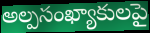
అల్పసంఖ్యాకులపై